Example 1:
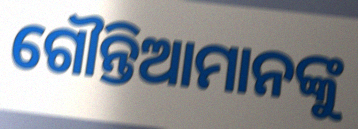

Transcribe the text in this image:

ଗୌନ୍ତିଆମାନଙ୍କୁ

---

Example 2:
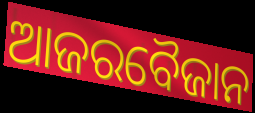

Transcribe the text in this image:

ଆଜରବୈଜାନ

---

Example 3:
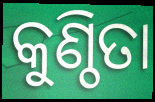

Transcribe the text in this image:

କୁଣ୍ଠିତା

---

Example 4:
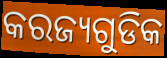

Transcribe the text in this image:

କରଜ୍ୟଗୁଡିକ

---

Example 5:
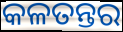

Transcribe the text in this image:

କଳତନ୍ତର